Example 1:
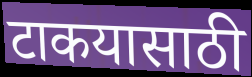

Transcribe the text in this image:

टाकयासाठी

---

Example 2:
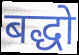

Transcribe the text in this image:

बद्धो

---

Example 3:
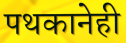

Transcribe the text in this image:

पथकानेही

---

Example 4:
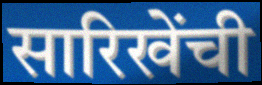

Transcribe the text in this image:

सारिखेंची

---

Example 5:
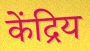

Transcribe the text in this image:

केंद्रिय